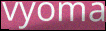
vyoma